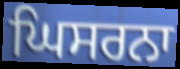
ਘਿਸਰਨਾ